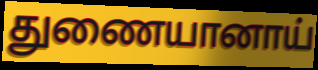
துணையானாய்